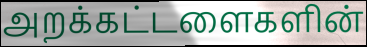
அறக்கட்டளைகளின்